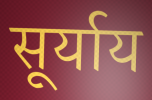
सूर्याय